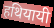
हथियायी